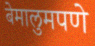
बेमालुमपणे